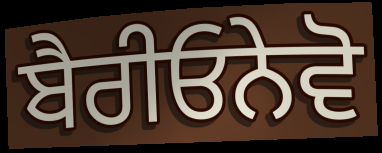
ਬੈਰੀਓਨੇਵੋ